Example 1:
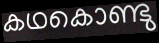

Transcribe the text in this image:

കഥകൊണ്ടു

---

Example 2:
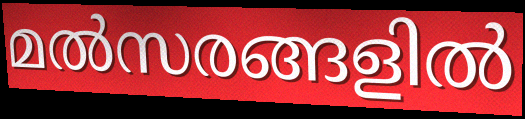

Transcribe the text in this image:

മൽസരങ്ങളിൽ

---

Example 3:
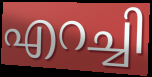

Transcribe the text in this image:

എറച്ചി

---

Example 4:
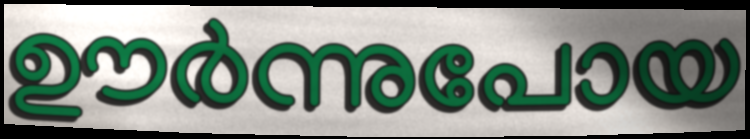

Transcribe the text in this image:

ഊർന്നുപോയ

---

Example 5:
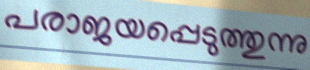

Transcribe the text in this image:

പരാജയപ്പെടുത്തുന്നു